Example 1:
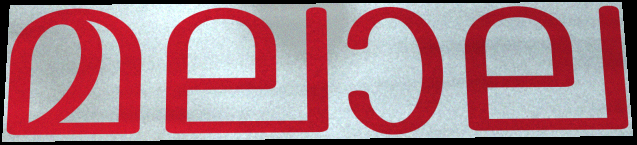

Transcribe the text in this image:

മലാല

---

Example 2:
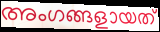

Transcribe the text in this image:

അംഗങ്ങളായത്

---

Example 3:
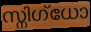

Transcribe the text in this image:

സ്നിഗ്ധോ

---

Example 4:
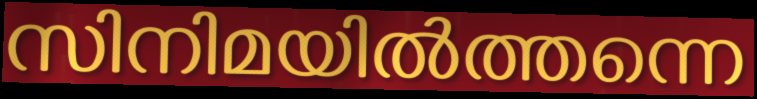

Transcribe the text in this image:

സിനിമയിൽത്തന്നെ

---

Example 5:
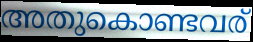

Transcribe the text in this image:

അതുകൊണ്ടവര്